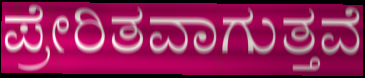
ಪ್ರೇರಿತವಾಗುತ್ತವೆ